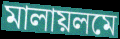
মালায়লমে